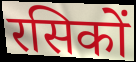
रसिकों